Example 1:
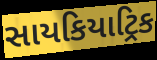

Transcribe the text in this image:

સાયકિયાટ્રિક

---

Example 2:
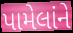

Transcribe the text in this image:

પામેલાંને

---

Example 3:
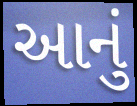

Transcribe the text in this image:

આનું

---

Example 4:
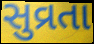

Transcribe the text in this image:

સુવ્રતા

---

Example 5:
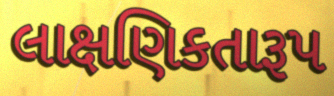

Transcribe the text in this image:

લાક્ષણિકતારૂપ